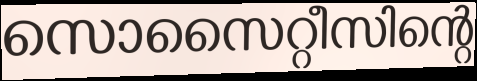
സൊസൈറ്റീസിന്റെ